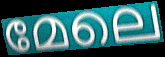
മേലെ